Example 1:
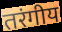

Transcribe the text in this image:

तरंगीय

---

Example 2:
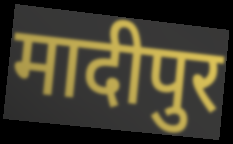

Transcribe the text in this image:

मादीपुर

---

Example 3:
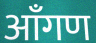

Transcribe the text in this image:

आँगण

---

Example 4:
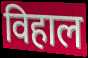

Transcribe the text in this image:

विहाल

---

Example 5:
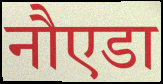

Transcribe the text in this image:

नौएडा